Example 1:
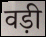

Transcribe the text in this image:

वड़ी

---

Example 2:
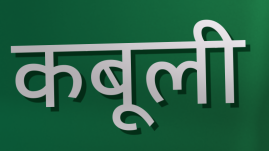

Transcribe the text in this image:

कबूली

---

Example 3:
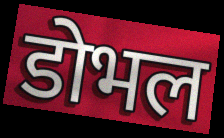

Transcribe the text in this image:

डोभल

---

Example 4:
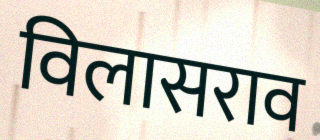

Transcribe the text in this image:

विलासराव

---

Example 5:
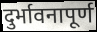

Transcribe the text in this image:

दुर्भावनापूर्ण